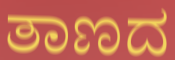
ತಾಣದ